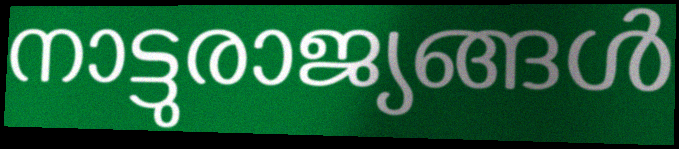
നാട്ടുരാജ്യങ്ങൾ